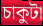
চাকুটা